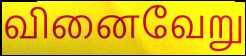
வினைவேறு